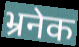
भ्रनेक